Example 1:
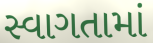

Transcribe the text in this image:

સ્વાગતામાં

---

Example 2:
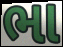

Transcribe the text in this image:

ભા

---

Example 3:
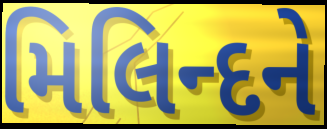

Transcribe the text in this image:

મિલિન્દને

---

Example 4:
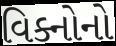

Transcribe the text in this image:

વિક્નોનો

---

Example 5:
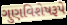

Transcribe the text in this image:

ગુણવિશેષરૂપે